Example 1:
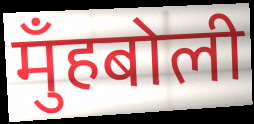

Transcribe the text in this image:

मुँहबोली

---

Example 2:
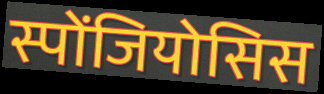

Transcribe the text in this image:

स्पोंजियोसिस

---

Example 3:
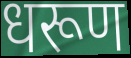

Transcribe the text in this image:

धरूण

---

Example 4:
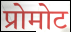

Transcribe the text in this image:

प्रोमोट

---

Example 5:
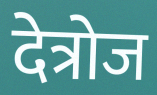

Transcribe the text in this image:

देत्रोज